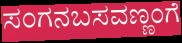
ಸಂಗನಬಸವಣ್ಣಂಗೆ